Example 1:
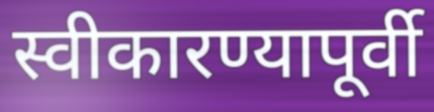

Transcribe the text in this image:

स्वीकारण्यापूर्वी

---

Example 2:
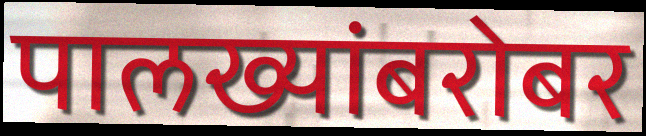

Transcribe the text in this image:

पालख्यांबरोबर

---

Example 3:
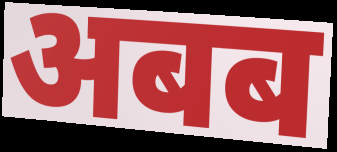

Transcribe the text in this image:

अबब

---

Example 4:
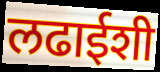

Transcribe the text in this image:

लढाईशी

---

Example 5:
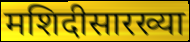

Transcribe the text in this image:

मशिदीसारख्या